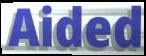
Aided